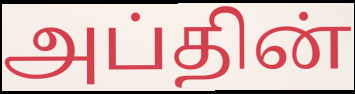
அப்தின்